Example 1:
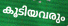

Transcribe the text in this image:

കൂടിയവരും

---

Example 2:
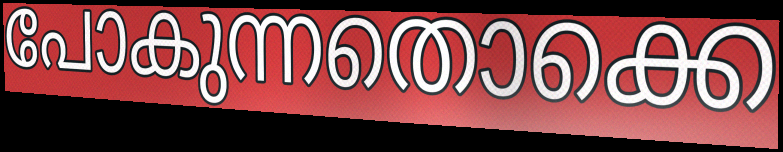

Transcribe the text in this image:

പോകുന്നതൊക്കെ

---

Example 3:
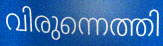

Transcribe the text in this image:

വിരുന്നെത്തി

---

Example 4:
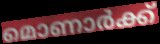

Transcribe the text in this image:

മൊണാർക്ക്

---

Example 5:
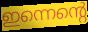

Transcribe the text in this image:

ഇന്നെന്റെ